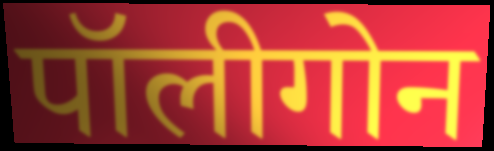
पॉलीगोन